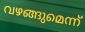
വഴങ്ങുമെന്ന്